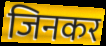
जिनकर